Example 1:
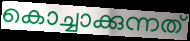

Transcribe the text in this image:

കൊച്ചാക്കുന്നത്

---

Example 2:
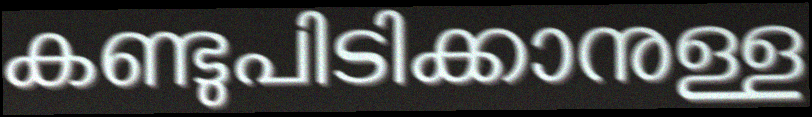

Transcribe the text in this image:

കണ്ടുപിടിക്കാനുള്ള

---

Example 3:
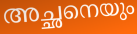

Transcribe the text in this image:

അച്ഛനെയും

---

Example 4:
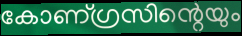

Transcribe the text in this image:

കോണ്ഗ്രസിന്റെയും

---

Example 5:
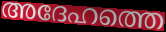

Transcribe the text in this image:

അദേഹത്തെ